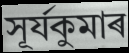
সূৰ্যকুমাৰ